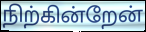
நிற்கின்றேன்